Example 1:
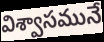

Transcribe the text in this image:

విశ్వాసమునే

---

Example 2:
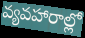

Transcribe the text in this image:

వ్యవహారాల్లో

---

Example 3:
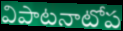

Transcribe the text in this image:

విపాటనాటోప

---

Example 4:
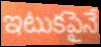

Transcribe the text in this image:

ఇటుకపైనే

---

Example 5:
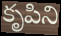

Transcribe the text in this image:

కృపిని